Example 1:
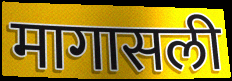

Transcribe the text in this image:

मागासली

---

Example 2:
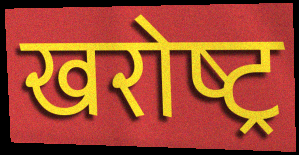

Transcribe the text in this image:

खरोष्ट्र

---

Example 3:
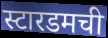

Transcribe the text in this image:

स्टारडमची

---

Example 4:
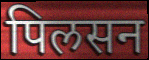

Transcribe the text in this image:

पिलसन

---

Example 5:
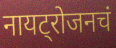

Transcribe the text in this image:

नायट्रोजनचं